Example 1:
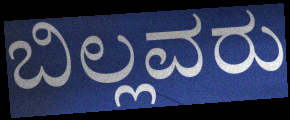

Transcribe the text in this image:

ಬಿಲ್ಲವರು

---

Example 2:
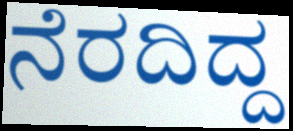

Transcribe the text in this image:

ನೆರದಿದ್ದ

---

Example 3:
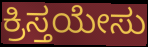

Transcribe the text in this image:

ಕ್ರಿಸ್ತಯೇಸು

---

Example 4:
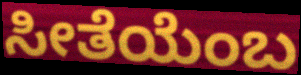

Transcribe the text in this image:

ಸೀತೆಯೆಂಬ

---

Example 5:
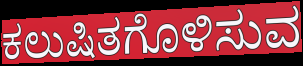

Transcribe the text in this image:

ಕಲುಷಿತಗೊಳಿಸುವ